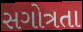
સગોત્રતા